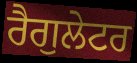
ਰੈਗੁਲੇਟਰ